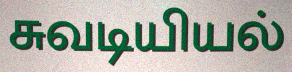
சுவடியியல்